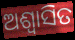
ଅଶ୍ୱାସିତ